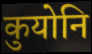
कुयोनि